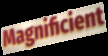
Magnificient